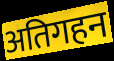
अतिगहन